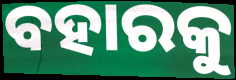
ବହାରକୁ